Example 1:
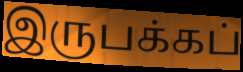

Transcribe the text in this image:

இருபக்கப்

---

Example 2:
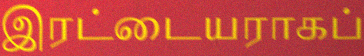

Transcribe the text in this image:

இரட்டையராகப்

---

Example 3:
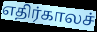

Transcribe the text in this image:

எதிர்காலச்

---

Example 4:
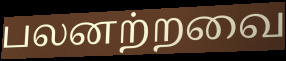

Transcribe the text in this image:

பலனற்றவை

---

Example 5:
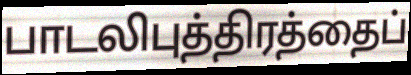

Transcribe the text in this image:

பாடலிபுத்திரத்தைப்